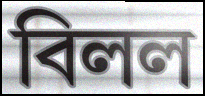
বিলল